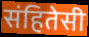
संहितेसी